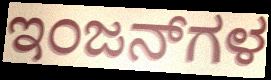
ಇಂಜನ್‌ಗಳ